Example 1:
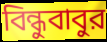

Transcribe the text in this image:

বিন্ধুবাবুর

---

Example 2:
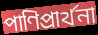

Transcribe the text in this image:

পাণিপ্রার্থনা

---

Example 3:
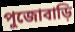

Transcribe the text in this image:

পুজোবাড়ি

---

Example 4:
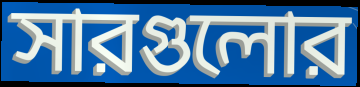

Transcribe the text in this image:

সারগুলোর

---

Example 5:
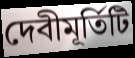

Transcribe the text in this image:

দেবীমূর্তিটি